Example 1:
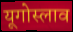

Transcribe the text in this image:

यूगोस्लाव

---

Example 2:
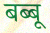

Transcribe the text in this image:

बब्बू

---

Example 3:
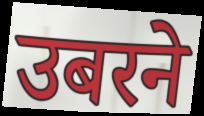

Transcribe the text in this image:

उबरने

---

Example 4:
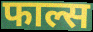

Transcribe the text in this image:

फाल्स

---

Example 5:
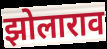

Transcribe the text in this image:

झोलाराव